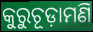
କୁରୁଚୂଡ଼ାମଣି